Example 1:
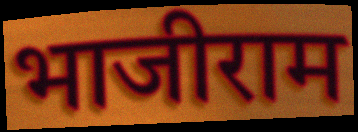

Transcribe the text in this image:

भाजीराम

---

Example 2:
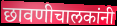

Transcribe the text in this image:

छावणीचालकांनी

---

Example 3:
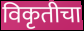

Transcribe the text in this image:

विकृतीचा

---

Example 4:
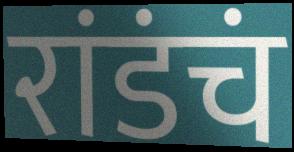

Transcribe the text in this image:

रांडंचं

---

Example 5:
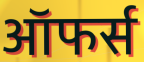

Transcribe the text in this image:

ऑफर्स